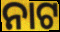
ନାଟ